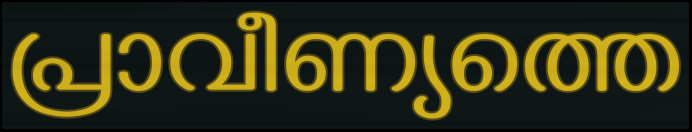
പ്രാവീണ്യത്തെ